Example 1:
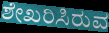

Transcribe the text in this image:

ಶೇಖರಿಸಿರುವ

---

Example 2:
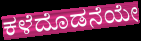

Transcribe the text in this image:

ಕಳೆದೊಡನೆಯೇ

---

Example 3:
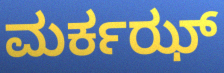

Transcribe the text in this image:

ಮರ್ಕಝ್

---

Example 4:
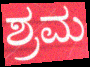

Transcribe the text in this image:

ಶ್ರಮ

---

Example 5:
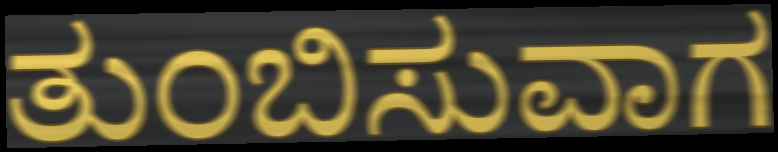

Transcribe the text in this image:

ತುಂಬಿಸುವಾಗ